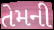
તેમની